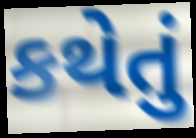
કથેતું